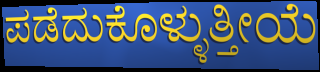
ಪಡೆದುಕೊಳ್ಳುತ್ತೀಯೆ